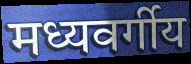
मध्यवर्गीय